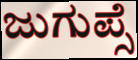
ಜುಗುಪ್ಸೆ